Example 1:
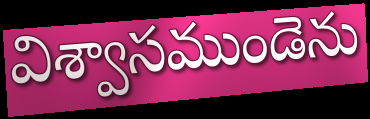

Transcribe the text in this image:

విశ్వాసముండెను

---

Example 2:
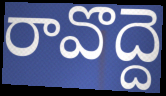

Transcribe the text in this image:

రావొద్దె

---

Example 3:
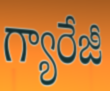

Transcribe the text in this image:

గ్యారేజీ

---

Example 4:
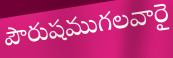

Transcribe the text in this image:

పౌరుషముగలవారై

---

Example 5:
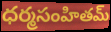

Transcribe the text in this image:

ధర్మసంహితమ్